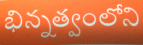
భిన్నత్వంలోని